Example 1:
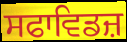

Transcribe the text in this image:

ਸਫਾਵਿਡਜ਼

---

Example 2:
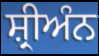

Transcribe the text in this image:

ਸ਼੍ਰੀਅੰਨ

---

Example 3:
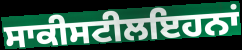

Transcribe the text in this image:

ਸਾਕੀਸਟੀਲਇਹਨਾਂ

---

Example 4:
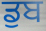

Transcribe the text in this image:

ਡੁਬ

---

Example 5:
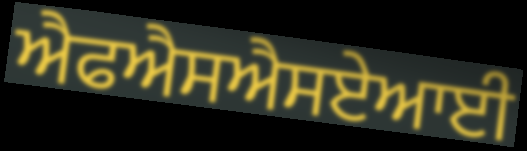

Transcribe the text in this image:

ਐਫਐਸਐਸਏਆਈ